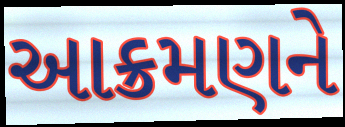
આક્રમણને